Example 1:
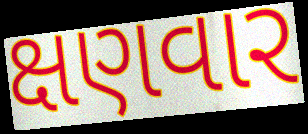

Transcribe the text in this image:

ક્ષણવાર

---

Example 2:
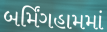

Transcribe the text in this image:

બર્મિંગહામમાં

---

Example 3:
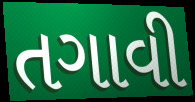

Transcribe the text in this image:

તગાવી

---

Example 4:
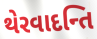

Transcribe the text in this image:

થેરવાદન્તિ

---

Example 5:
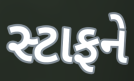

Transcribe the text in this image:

સ્ટાફને